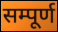
सम्पूर्ण